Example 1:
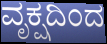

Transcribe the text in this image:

ವೃಕ್ಷದಿಂದ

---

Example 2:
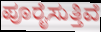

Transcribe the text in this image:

ಪೂರೈಸುತ್ತಿವೆ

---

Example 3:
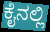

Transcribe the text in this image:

ಕೈನಲ್ಲಿ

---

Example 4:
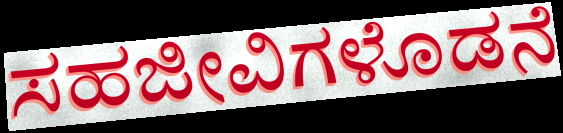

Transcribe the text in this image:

ಸಹಜೀವಿಗಳೊಡನೆ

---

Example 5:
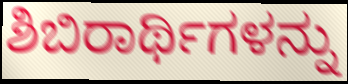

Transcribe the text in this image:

ಶಿಬಿರಾರ್ಥಿಗಳನ್ನು